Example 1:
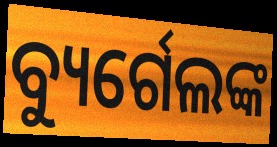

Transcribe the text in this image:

ବ୍ୟୁର୍ଗେଲଙ୍କ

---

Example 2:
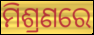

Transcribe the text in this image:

ମିଶ୍ରଣରେ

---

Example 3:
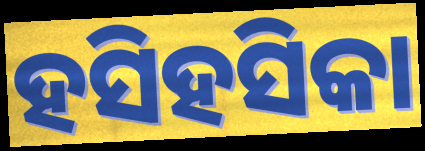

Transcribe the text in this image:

ହସିହସିକା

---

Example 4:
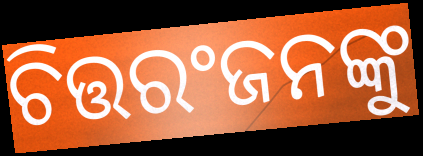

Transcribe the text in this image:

ଚିତ୍ତରଂଜନଙ୍କୁ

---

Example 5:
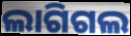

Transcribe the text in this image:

ଲାଗିଗଲ